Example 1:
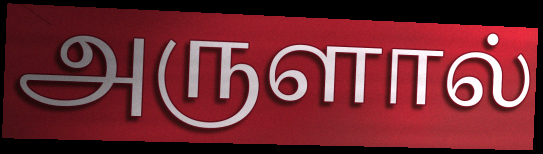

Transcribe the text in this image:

அருளால்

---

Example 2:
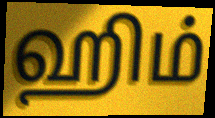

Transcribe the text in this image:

ஹிம்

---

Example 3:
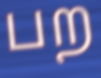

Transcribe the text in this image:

பற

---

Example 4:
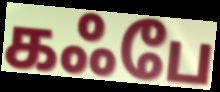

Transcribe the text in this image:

கஃபே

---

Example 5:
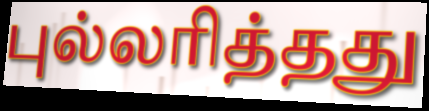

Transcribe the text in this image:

புல்லரித்தது